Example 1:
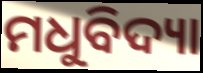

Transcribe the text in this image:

ମଧୁବିଦ୍ୟା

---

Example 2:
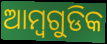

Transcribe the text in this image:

ଆମ୍ବଗୁଡିକ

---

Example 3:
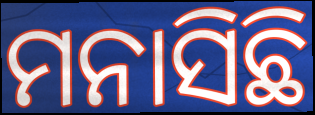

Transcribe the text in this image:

ମନାସିଛି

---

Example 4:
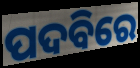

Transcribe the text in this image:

ପଦବିରେ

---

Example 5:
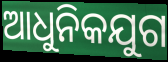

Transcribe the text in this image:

ଆଧୁନିକଯୁଗ